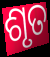
ଶୃତ